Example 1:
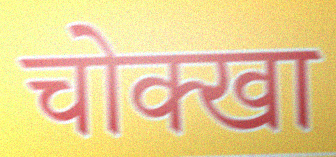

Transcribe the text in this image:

चोक्खा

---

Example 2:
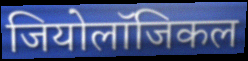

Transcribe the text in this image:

जियोलॉजिकल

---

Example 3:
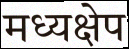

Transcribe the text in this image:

मध्यक्षेप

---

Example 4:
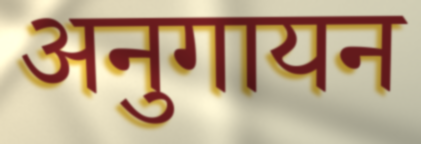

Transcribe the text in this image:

अनुगायन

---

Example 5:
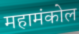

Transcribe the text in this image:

महामंकोल